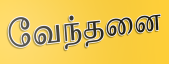
வேந்தனை